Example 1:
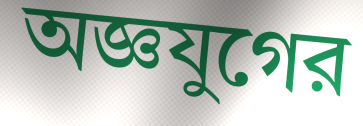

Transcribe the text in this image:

অজ্ঞযুগের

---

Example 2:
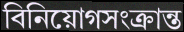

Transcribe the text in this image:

বিনিয়োগসংক্রান্ত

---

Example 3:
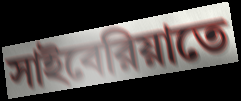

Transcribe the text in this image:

সাইবেরিয়াতে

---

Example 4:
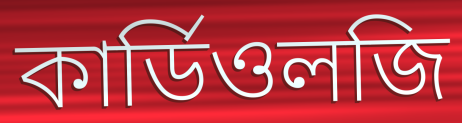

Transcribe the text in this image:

কার্ডিওলজি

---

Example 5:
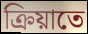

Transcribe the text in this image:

ক্রিয়াতে